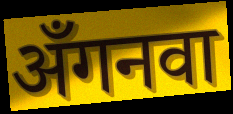
अँगनवा